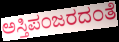
ಅಸ್ತಿಪಂಜರದಂತೆ